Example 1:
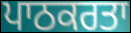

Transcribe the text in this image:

ਪਾਠਕਰਤਾ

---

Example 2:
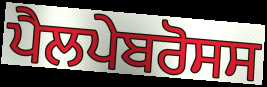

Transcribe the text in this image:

ਪੈਲਪੇਬਰੋਸਸ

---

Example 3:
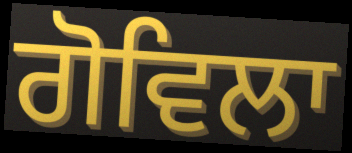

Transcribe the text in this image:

ਗੋਵਿਲਾ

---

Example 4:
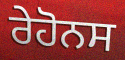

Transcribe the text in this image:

ਰੇਹੋਨਸ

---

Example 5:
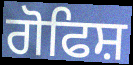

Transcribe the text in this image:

ਗੋਫਿਸ਼